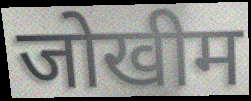
जोखीम